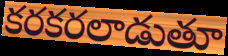
కరకరలాడుతూ